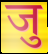
जु